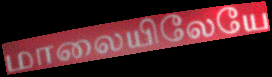
மாலையிலேயே